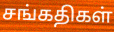
சங்கதிகள்